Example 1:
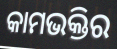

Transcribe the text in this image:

କାମଭକ୍ତିର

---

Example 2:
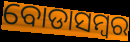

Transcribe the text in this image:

ବୋଡାସମ୍ବର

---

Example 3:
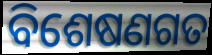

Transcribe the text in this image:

ବିଶେଷଣଗତ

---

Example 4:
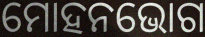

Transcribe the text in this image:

ମୋହନଭୋଗ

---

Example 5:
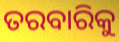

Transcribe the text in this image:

ତରବାରିକୁ